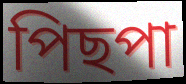
পিছপা